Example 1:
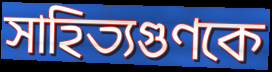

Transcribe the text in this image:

সাহিত্যগুণকে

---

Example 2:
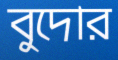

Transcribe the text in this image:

বুদোর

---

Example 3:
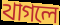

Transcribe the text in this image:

থাগলে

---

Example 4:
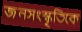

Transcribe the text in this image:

জনসংস্কৃতিকে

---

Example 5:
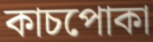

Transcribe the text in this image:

কাচপোকা